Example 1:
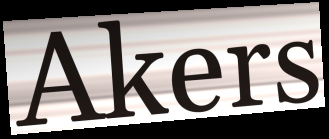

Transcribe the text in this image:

Akers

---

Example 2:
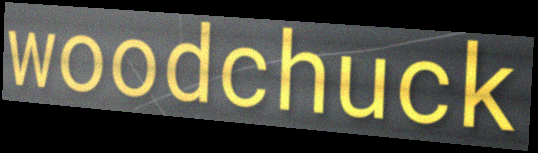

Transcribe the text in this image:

woodchuck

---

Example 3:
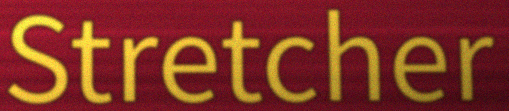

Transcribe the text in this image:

Stretcher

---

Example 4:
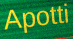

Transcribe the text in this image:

Apotti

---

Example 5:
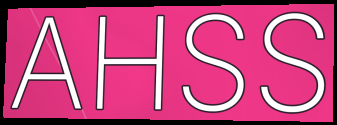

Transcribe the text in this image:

AHSS